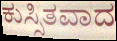
ಕುಸ್ಸಿತವಾದ